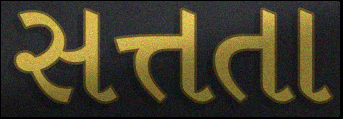
સત્તતા